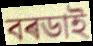
বৰডাই